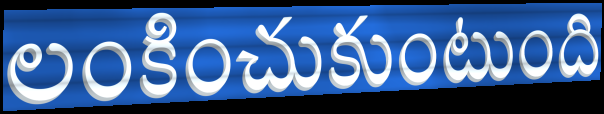
లంకించుకుంటుంది